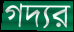
গদ্যর